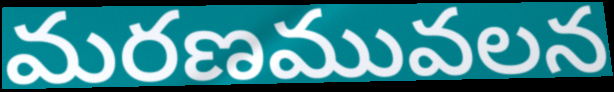
మరణమువలన